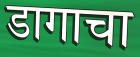
डागाचा